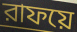
রাফয়ে